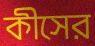
কীসের